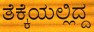
ತೆಕ್ಕೆಯಲ್ಲಿದ್ದ